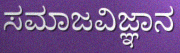
ಸಮಾಜವಿಜ್ಞಾನ